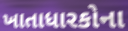
ખાતાધારકોના